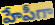
హేపీగా